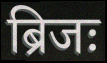
ब्रिजः